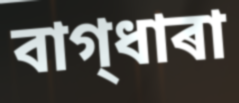
বাগ্‌ধাৰা